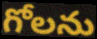
గోలను